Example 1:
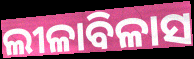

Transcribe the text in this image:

ଲୀଳାବିଳାସ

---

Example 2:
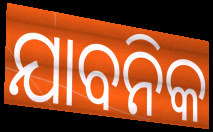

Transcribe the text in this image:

ଯାବନିକ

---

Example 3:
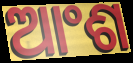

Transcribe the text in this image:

ଆଂଶ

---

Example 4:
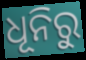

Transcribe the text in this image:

ଧୂନିରୁ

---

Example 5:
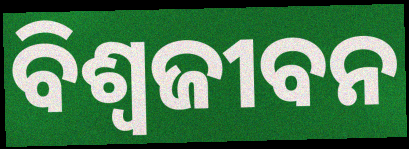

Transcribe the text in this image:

ବିଶ୍ଵଜୀବନ